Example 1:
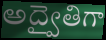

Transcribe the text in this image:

అద్వైతిగా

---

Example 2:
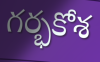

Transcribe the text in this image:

గర్భకోశ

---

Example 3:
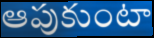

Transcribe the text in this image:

ఆపుకుంటా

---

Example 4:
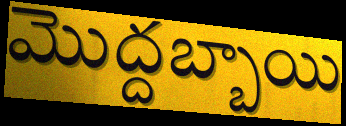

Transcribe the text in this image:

మొద్దబ్బాయి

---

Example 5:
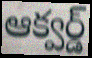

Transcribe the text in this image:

ఆక్వర్డ్